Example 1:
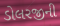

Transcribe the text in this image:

ડોલરજીની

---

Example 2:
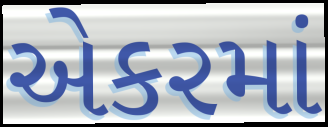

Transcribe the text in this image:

એકરમાં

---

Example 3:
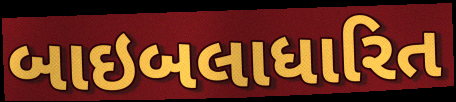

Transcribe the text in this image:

બાઇબલાધારિત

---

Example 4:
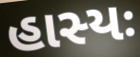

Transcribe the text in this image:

હાસ્યઃ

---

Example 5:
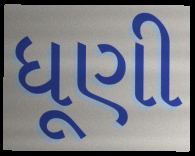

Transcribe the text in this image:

ધૂણી